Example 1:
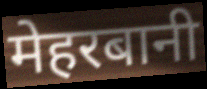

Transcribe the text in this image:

मेहरबानी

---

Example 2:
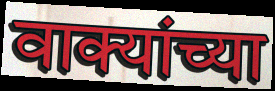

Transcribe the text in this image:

वाक्यांच्या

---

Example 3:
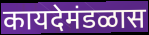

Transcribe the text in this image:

कायदेमंडळास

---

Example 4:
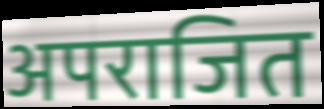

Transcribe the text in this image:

अपराजित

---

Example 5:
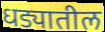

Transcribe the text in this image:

धड्यातील